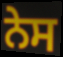
ਨੇਸ